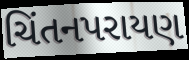
ચિંતનપરાયણ